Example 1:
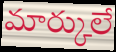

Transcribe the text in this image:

మార్కులే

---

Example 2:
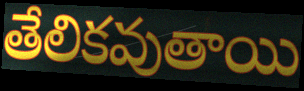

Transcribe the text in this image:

తేలికవుతాయి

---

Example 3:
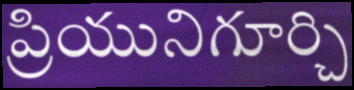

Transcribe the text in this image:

ప్రియునిగూర్చి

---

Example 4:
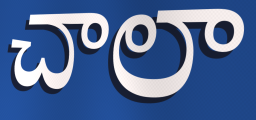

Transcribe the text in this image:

చాలా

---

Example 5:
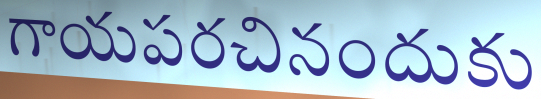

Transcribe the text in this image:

గాయపరచినందుకు